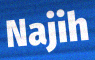
Najih